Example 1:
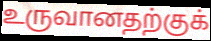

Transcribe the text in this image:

உருவானதற்குக்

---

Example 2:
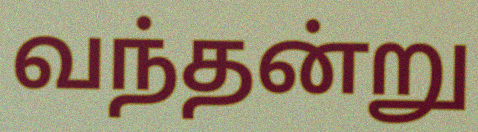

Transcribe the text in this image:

வந்தன்று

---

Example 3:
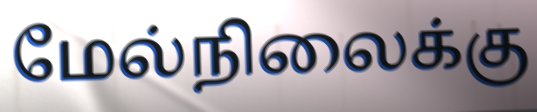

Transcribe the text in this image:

மேல்நிலைக்கு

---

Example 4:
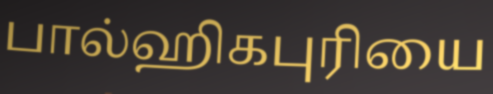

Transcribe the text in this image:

பால்ஹிகபுரியை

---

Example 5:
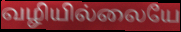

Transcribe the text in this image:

வழியில்லையே